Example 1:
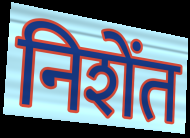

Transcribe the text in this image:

निशेंत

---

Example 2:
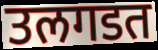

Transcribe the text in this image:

उलगडत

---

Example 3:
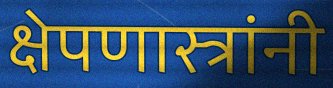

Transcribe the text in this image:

क्षेपणास्त्रांनी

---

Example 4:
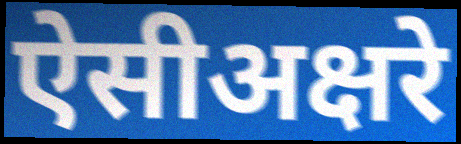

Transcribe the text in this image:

ऐसीअक्षरे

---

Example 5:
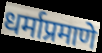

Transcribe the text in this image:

धर्माप्रमाणे